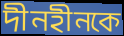
দীনহীনকে